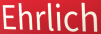
Ehrlich